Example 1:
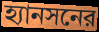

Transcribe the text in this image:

হ্যানসনের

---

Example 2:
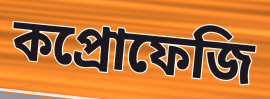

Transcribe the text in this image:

কপ্রোফেজি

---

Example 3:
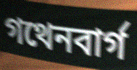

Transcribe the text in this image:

গথেনবার্গ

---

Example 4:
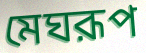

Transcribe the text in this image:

মেঘরূপ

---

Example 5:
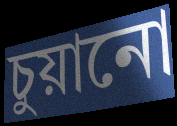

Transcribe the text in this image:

চুয়ানো